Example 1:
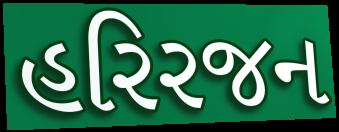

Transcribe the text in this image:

હરિરજન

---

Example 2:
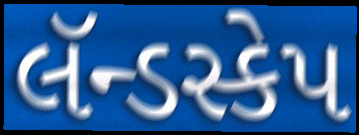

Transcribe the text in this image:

લૅન્ડસ્કેપ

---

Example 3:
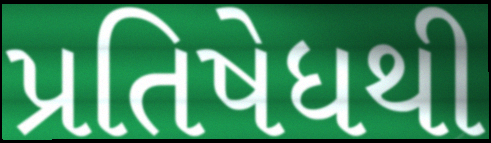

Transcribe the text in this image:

પ્રતિષેધથી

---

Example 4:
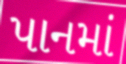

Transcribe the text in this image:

પાનમાં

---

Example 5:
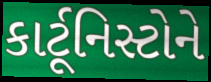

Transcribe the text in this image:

કાર્ટૂનિસ્ટોને